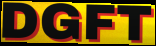
DGFT